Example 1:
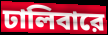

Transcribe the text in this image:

ঢালিবারে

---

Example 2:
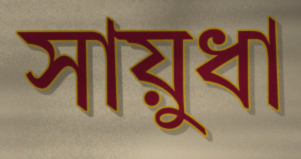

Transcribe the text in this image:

সায়ুধা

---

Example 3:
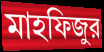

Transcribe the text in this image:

মাহফিজুর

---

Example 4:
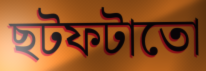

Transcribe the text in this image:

ছটফটাতো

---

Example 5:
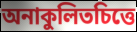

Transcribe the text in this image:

অনাকুলিতচিত্তে